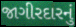
જાગીરદારનું